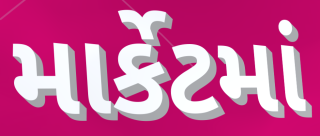
માર્કેટમાં